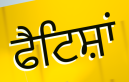
ਫੈਟਿਸ਼ਾਂ